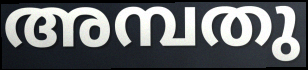
അമ്പതു